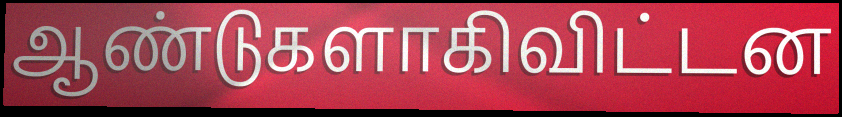
ஆண்டுகளாகிவிட்டன